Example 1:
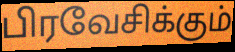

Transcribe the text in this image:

பிரவேசிக்கும்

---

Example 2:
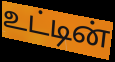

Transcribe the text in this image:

உட்டின்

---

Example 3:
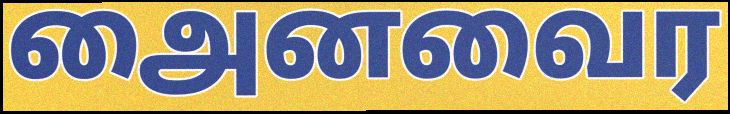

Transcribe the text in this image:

அைனவைர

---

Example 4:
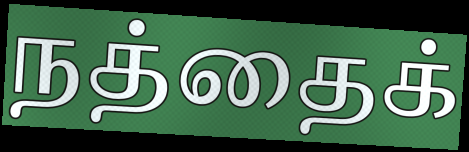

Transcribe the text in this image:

நத்தைக்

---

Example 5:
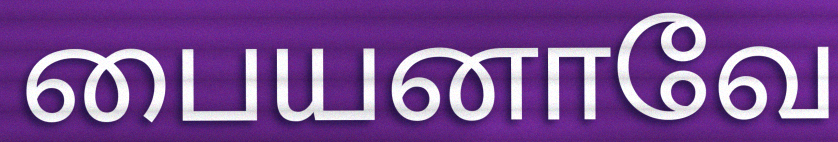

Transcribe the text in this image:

பையனாவே